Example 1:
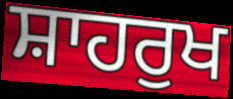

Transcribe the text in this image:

ਸ਼ਾਹਰੁਖ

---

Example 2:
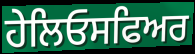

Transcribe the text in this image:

ਹੇਲਿਓਸਫਿਅਰ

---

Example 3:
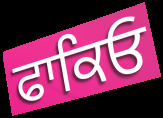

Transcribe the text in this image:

ਫਾਕਿਓ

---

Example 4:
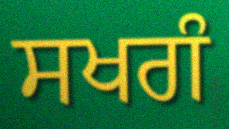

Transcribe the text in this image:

ਸਖਗੰ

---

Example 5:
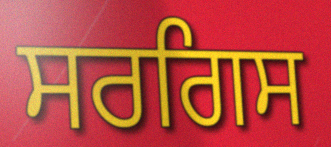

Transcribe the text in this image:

ਸਰਗਿਸ